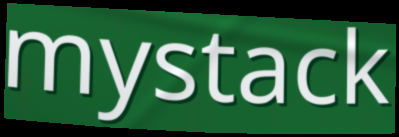
mystack